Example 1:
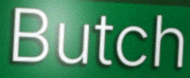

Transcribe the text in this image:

Butch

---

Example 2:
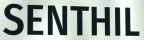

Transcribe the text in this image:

SENTHIL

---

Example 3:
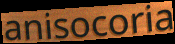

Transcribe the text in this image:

anisocoria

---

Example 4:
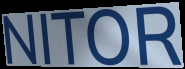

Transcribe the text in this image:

NITOR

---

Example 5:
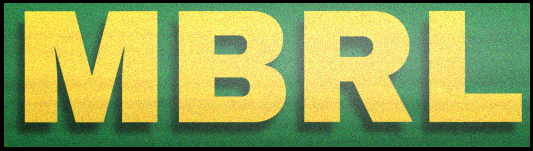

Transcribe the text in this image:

MBRL